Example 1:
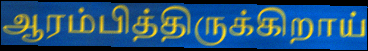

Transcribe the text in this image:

ஆரம்பித்திருக்கிறாய்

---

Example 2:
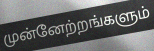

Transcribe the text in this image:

முன்னேற்றங்களும்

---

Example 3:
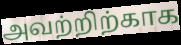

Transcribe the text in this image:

அவற்றிற்காக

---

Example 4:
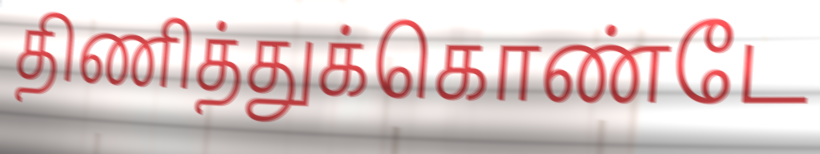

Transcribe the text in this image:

திணித்துக்கொண்டே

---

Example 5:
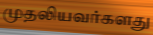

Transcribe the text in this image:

முதலியவர்களது